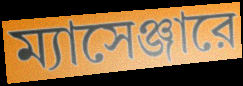
ম্যাসেঞ্জারে